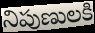
నిపుణులకి